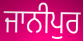
ਜਾਨੀਪੁਰ